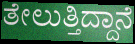
ತೇಲುತ್ತಿದ್ದಾನೆ